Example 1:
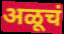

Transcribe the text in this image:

अळूचं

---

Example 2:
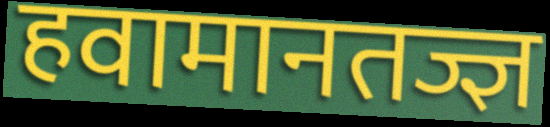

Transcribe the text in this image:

हवामानतज्ज्ञ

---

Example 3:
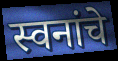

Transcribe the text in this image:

स्वनांचे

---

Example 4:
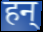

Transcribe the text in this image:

हन्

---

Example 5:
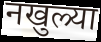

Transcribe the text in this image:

नखुल्या